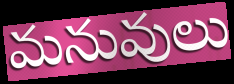
మనువులు